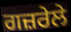
ਗਜ਼ਰੇਲੇ